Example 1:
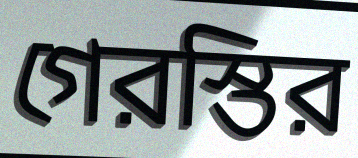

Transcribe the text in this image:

গেরস্তির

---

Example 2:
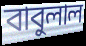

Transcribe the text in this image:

বাবুলাল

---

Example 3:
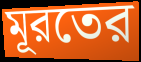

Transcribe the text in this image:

মূরতের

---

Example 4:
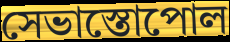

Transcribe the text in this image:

সেভাস্তোপোল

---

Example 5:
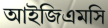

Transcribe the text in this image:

আইজিএমসি